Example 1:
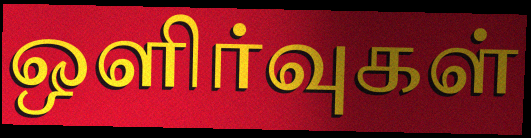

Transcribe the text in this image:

ஒளிர்வுகள்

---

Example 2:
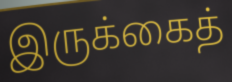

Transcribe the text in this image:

இருக்கைத்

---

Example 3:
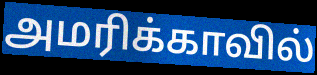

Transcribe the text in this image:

அமரிக்காவில்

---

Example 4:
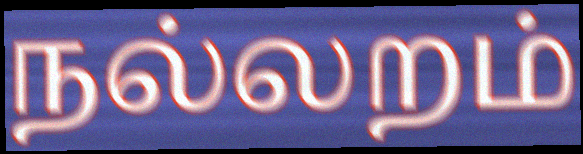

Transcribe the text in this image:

நல்லறம்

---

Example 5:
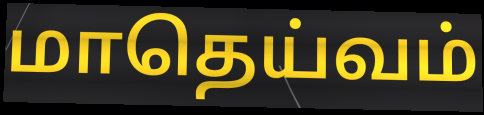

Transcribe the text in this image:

மாதெய்வம்